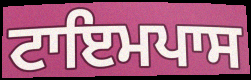
ਟਾਇਮਪਾਸ